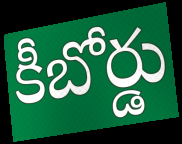
కీబోర్డు